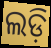
ଲଡ଼ି